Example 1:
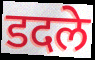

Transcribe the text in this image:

डदले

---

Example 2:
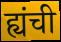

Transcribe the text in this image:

ह्यंची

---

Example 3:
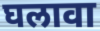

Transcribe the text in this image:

घलावा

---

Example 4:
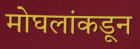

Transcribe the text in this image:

मोघलांकडून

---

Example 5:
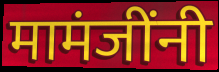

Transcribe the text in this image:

मामंजींनी